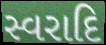
સ્વરાદિ